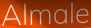
Almale